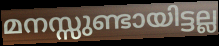
മനസ്സുണ്ടായിട്ടല്ല